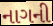
નાગની